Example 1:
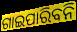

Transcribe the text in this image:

ଗାଇପାରିବନି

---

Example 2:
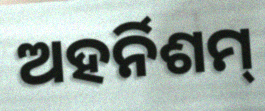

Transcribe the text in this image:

ଅହର୍ନିଶମ୍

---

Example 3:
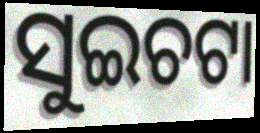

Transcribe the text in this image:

ସୁଇଚଟା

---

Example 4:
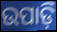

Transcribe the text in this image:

ଉପାଡ଼ି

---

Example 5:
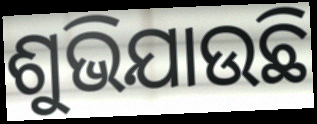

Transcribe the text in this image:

ଶୁଭିଯାଉଛି